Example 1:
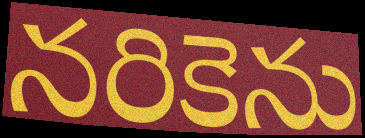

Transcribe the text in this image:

నరికెను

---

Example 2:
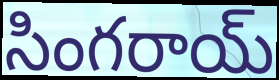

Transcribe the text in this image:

సింగరాయ్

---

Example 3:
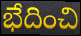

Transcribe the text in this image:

భేదించి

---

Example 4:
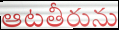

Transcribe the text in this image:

ఆటతీరును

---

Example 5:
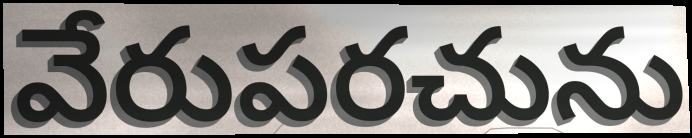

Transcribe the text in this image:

వేరుపరచును